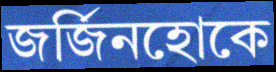
জর্জিনহোকে